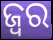
ଜ୍ଵର